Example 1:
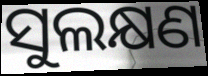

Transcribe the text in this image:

ସୁଲକ୍ଷଣ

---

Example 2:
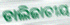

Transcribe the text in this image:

ଡାଲିଜାତୀୟ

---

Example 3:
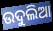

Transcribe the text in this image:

ଉଦୁଲିଆ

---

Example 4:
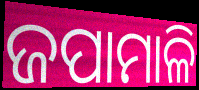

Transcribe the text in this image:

ଜପାମାଳି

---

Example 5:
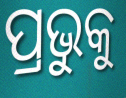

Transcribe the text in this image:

ପ୍ରଭୁକୁ